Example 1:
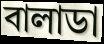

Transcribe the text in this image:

বালাডা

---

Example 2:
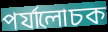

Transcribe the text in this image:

পর্যালোচক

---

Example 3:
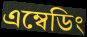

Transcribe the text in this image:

এম্বেডিং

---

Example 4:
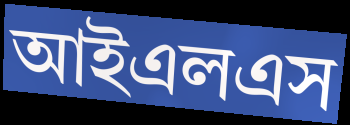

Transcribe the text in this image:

আইএলএস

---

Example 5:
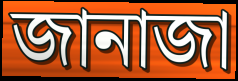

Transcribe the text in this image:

জানাজা